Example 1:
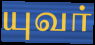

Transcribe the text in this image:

யுவர்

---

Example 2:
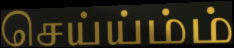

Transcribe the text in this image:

செய்ய்ம்ம்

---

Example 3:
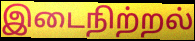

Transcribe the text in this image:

இடைநிற்றல்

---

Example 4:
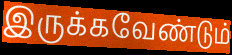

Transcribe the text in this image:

இருக்கவேண்டும்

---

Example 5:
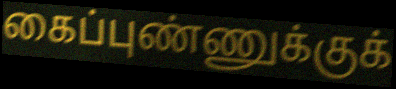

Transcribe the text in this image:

கைப்புண்ணுக்குக்